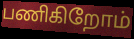
பணிகிறோம்